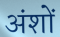
अंशों